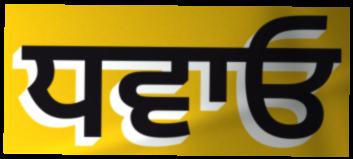
ਧਵਾਓ